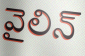
వైలిన్